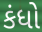
કંધો